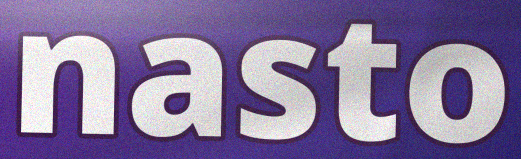
nasto